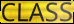
CLASS